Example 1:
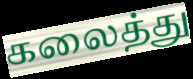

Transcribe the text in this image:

கலைத்து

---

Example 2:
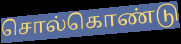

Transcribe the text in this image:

சொல்கொண்டு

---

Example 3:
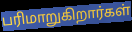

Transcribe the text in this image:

பரிமாறுகிறார்கள்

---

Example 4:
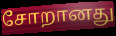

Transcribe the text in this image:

சோறானது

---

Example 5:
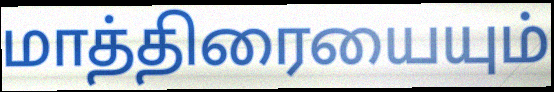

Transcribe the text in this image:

மாத்திரையையும்